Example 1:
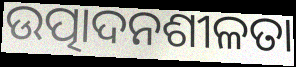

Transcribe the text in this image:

ଉତ୍ପାଦନଶୀଳତା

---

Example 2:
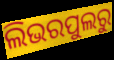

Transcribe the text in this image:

ଲିଭରପୁଲରୁ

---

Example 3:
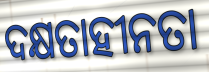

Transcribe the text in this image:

ଦକ୍ଷତାହୀନତା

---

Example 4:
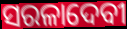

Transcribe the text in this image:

ସରଳାଦେବୀ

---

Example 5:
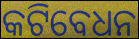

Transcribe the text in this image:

କଟିବେଧନ